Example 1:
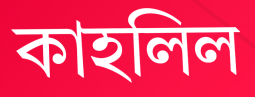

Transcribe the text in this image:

কাহলিল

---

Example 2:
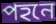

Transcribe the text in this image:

পহনে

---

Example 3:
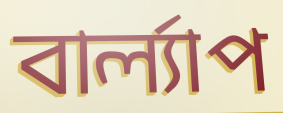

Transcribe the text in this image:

বার্ল্যাপ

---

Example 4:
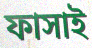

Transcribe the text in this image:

ফাসাই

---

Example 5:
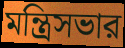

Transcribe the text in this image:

মন্ত্রিসভার